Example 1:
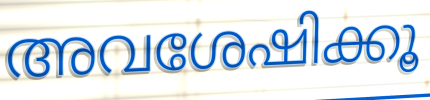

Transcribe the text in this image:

അവശേഷിക്കൂ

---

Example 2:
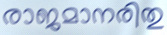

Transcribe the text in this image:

രാജമാനരിതു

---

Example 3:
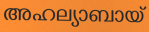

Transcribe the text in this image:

അഹല്യാബായ്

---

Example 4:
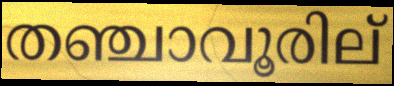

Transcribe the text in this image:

തഞ്ചാവൂരില്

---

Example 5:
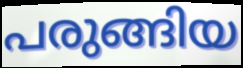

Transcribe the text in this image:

പരുങ്ങിയ